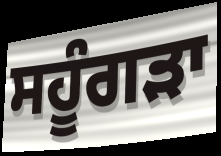
ਸਹੂੰਗੜਾ